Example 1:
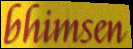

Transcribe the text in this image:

bhimsen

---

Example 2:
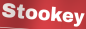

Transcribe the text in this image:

Stookey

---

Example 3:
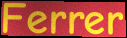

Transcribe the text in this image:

Ferrer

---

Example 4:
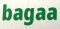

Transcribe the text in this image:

bagaa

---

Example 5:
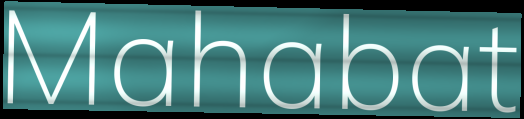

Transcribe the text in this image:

Mahabat